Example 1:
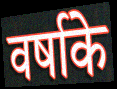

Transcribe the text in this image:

वर्षाके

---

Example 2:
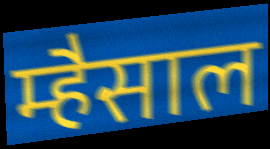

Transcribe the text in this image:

म्हैसाल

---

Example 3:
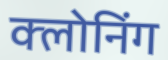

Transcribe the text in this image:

क्‍लोनिंग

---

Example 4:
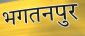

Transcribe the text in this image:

भगतनपुर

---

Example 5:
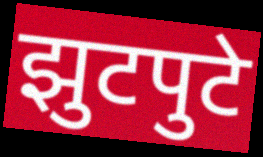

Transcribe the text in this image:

झुटपुटे